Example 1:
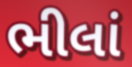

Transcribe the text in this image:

ભીલાં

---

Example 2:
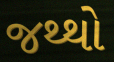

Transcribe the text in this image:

જથ્થો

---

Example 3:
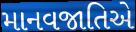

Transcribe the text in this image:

માનવજાતિએ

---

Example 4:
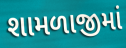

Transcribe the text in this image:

શામળાજીમાં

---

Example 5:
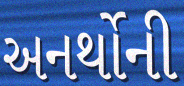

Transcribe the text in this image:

અનર્થોની